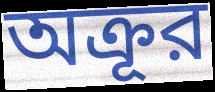
অক্রূর